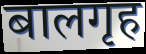
बालगृह